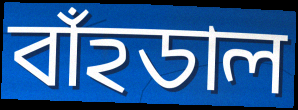
বাঁহডাল